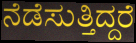
ನೆಡೆಸುತ್ತಿದ್ದರೆ